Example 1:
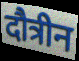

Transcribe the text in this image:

दौत्रीन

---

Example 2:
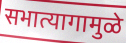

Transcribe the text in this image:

सभात्यागामुळे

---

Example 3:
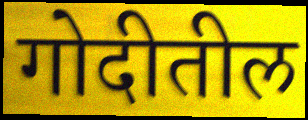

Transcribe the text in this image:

गोदीतील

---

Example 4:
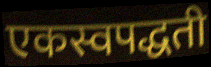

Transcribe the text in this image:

एकस्वपद्धती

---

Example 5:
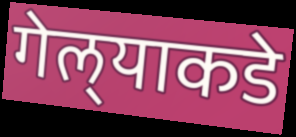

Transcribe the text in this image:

गेल्याकडे